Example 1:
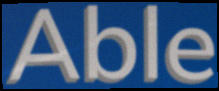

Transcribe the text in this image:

Able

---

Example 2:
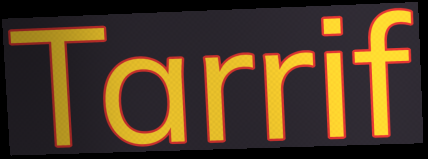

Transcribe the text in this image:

Tarrif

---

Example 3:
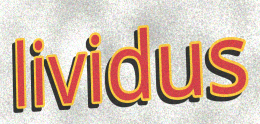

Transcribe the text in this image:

lividus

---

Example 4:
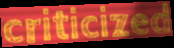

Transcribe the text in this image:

criticized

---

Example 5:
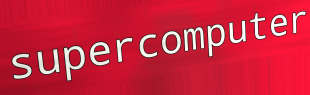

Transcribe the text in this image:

supercomputer